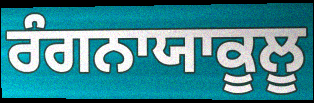
ਰੰਗਨਾਯਾਕੂਲੂ